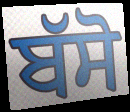
ਬੱਸੋ